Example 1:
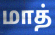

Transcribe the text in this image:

மாத்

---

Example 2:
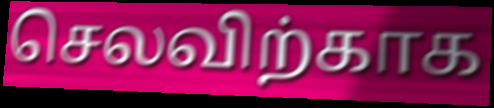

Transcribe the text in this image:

செலவிற்காக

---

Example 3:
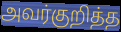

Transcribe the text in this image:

அவர்குறித்த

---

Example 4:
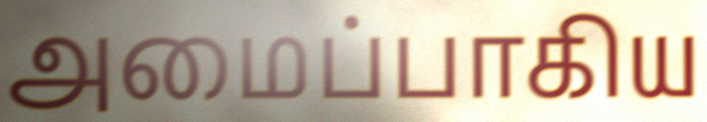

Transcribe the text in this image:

அமைப்பாகிய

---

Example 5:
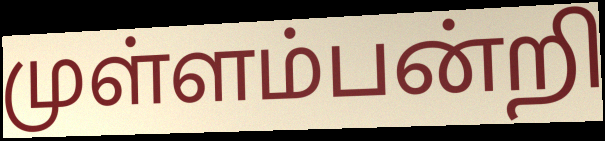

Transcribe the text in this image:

முள்ளம்பன்றி